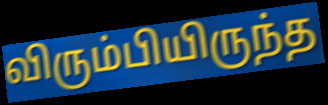
விரும்பியிருந்த